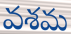
వశమ